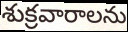
శుక్రవారాలను